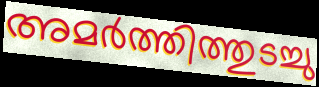
അമർത്തിത്തുടച്ചു